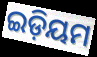
ଇଡ଼ିୟମ